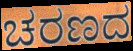
ಚರಣದ